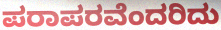
ಪರಾಪರವೆಂದರಿದು